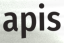
apis